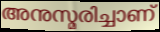
അനുസ്മരിച്ചാണ്